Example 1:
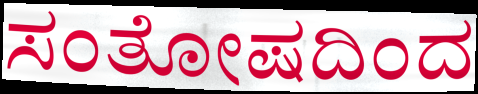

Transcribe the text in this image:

ಸಂತೋಷದಿಂದ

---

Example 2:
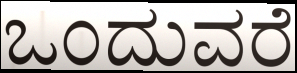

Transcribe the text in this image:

ಒಂದುವರೆ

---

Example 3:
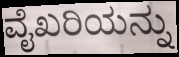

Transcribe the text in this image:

ವೈಖರಿಯನ್ನು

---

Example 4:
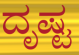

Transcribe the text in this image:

ದೃಷ್ಟ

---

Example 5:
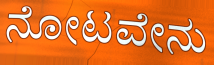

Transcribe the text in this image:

ನೋಟವೇನು